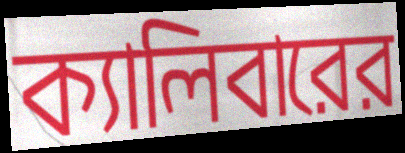
ক্যালিবারের